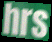
hrs